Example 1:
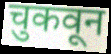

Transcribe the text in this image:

चुकवून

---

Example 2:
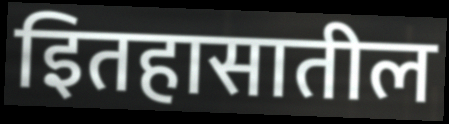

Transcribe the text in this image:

इितहासातील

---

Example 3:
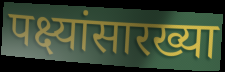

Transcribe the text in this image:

पक्ष्यांसारख्या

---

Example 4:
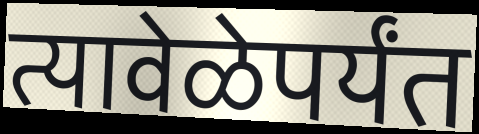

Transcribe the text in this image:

त्यावेळेपर्यंत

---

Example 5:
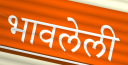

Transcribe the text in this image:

भावलेली